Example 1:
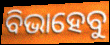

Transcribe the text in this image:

ବିଭାହେବୁ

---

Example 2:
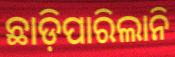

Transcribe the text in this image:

ଛାଡ଼ିପାରିଲାନି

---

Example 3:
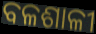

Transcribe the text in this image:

ବଳଶାଳୀ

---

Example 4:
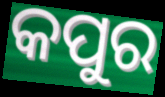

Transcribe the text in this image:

କପୁର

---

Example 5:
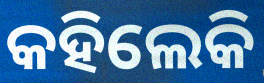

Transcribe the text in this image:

କହିଲେକି